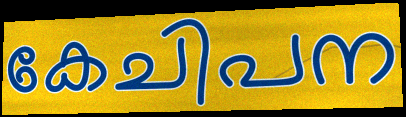
കേചിപന